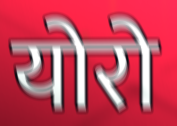
योरो